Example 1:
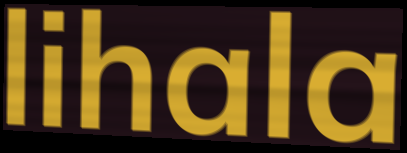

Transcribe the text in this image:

lihala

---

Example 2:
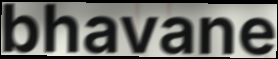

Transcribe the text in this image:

bhavane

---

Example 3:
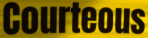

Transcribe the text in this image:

Courteous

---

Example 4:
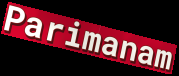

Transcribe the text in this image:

Parimanam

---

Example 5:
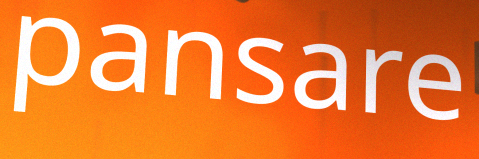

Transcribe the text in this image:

pansare